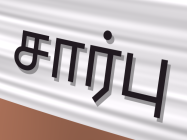
சார்பு